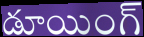
డూయింగ్